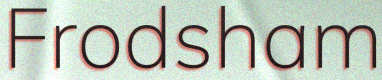
Frodsham